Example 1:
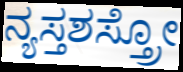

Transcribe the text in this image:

ನ್ಯಸ್ತಶಸ್ತ್ರೋ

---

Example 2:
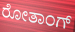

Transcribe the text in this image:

ರೋತಾಂಗ್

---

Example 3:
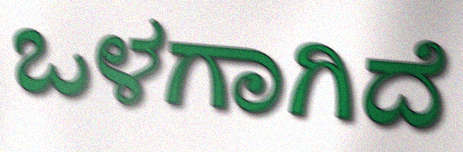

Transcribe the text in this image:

ಒಳಗಾಗಿದೆ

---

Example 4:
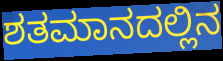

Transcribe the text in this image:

ಶತಮಾನದಲ್ಲಿನ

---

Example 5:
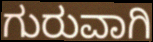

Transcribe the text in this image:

ಗುರುವಾಗಿ